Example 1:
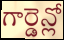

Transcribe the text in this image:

గార్డెన్లో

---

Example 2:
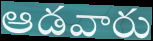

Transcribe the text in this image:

ఆడవారు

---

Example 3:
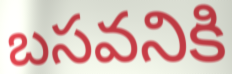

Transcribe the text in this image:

బసవనికి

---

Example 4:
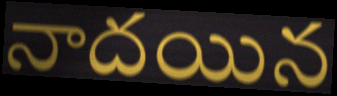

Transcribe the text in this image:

నాదయిన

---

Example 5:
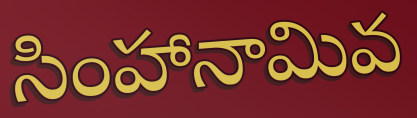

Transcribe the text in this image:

సింహానామివ